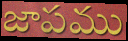
జాపము